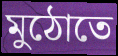
মুঠোতে